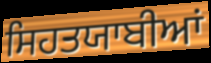
ਸਿਹਤਯਾਬੀਆਂ